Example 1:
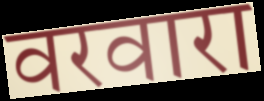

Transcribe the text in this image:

वरवारा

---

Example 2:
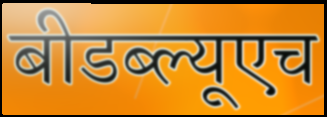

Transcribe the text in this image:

बीडब्ल्यूएच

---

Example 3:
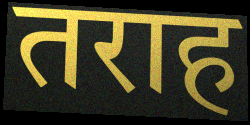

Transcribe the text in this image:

तराह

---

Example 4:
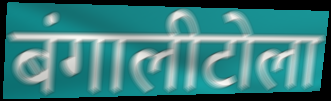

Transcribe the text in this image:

बंगालीटोला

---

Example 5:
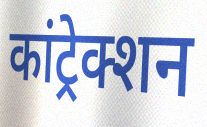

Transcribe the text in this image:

कांट्रेक्शन